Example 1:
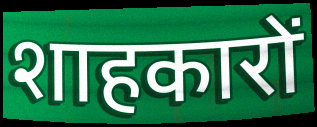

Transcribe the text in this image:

शाहकारों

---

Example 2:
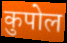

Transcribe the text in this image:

कुपोल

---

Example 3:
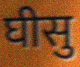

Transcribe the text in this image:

घीसु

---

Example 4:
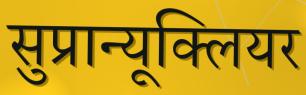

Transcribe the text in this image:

सुप्रान्यूक्लियर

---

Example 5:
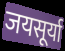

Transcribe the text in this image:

जयसूर्या